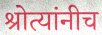
श्रोत्यांनीच